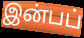
இன்பப்